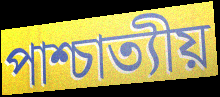
পাশ্চাত্যীয়